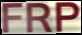
FRP